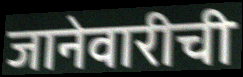
जानेवारीची